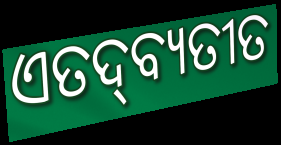
ଏତଦ୍‌ବ୍ୟତୀତ